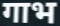
गाभ